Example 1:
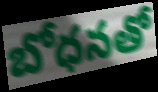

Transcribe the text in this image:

బోధనతో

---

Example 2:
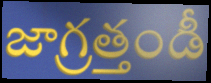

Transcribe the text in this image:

జాగ్రత్తండీ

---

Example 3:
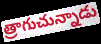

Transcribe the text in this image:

త్రాగుచున్నాడు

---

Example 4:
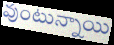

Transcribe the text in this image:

వుంటున్నాయి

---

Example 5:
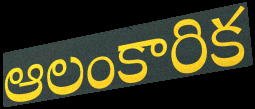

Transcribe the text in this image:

ఆలంకారిక